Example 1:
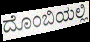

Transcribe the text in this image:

ದೊಂಬಿಯಲ್ಲಿ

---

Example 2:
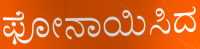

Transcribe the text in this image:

ಫೋನಾಯಿಸಿದ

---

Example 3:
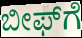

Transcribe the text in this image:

ಬೀಫ್‌ಗೆ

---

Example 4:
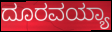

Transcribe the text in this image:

ದೂರವಯ್ಯಾ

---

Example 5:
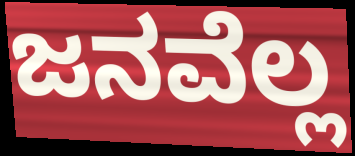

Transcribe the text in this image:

ಜನವೆಲ್ಲ